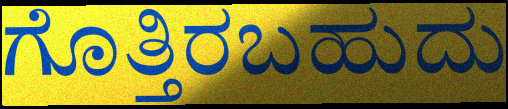
ಗೊತ್ತಿರಬಹುದು